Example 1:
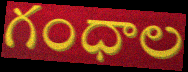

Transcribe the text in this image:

గంధాల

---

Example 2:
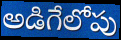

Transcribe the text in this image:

అడిగేలోపు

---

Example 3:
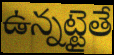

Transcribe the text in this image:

ఉన్నట్టైతే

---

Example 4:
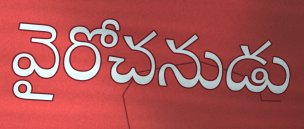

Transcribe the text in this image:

వైరోచనుడు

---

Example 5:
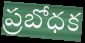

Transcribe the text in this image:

ప్రబోధక